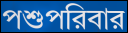
পশুপরিবার